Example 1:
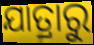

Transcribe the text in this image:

ଯାତ୍ରାରୁ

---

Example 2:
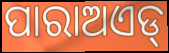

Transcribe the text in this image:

ପାରାଅଏଡ୍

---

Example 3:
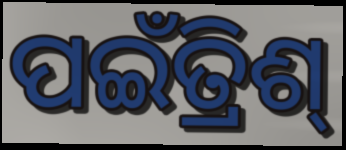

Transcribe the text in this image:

ପଇଁତ୍ରିଶ୍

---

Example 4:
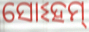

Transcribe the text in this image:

ସୋଽହମ୍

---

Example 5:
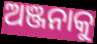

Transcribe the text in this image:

ଅଞ୍ଜନାକୁ